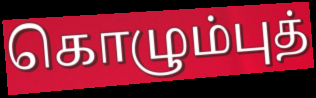
கொழும்புத்